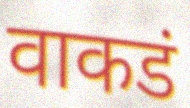
वाकडं